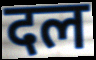
दल